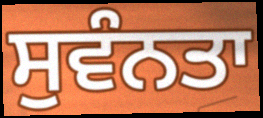
ਸੁਵੰਨਤਾ